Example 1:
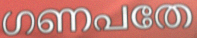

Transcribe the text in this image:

ഗണപതേ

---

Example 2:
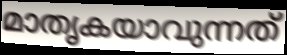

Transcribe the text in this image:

മാതൃകയാവുന്നത്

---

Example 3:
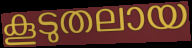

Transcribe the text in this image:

കൂടുതലായ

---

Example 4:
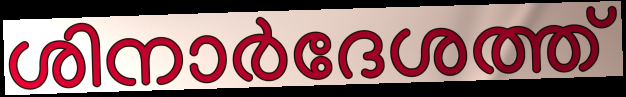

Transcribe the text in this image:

ശിനാർദേശത്ത്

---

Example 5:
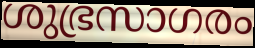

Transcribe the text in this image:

ശുഭ്രസാഗരം